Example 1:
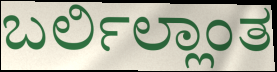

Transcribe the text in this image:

ಬರ್ಲಿಲ್ಲಾಂತ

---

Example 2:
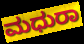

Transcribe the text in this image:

ಮಧುರಾ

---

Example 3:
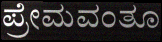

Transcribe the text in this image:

ಪ್ರೇಮವಂತೂ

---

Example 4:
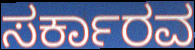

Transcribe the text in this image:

ಸರ್ಕಾರವ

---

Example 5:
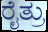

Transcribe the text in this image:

ರೈತ್ರು